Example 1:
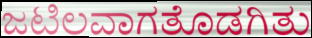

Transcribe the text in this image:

ಜಟಿಲವಾಗತೊಡಗಿತು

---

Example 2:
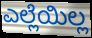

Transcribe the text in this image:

ಎಲ್ಲೆಯಿಲ್ಲ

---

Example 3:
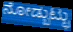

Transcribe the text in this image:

ನೋಡ್ಬುಟ್ಟು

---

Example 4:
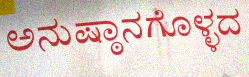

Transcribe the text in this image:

ಅನುಷ್ಠಾನಗೊಳ್ಳದ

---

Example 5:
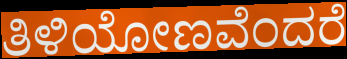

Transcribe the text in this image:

ತಿಳಿಯೋಣವೆಂದರೆ